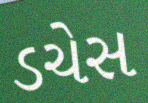
ડચેસ